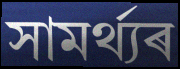
সামৰ্থ্যৰ